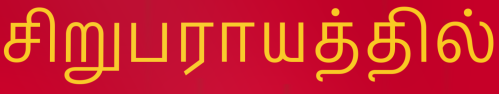
சிறுபராயத்தில்